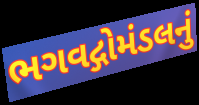
ભગવદ્ગોમંડલનું